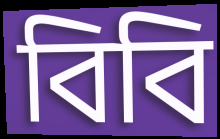
বিবি